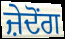
ਜ਼ੇਦੋਂਗ